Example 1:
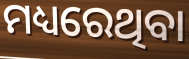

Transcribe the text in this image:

ମଧ୍ୟରେଥିବା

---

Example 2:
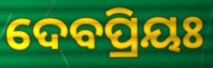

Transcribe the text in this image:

ଦେବପ୍ରିୟଃ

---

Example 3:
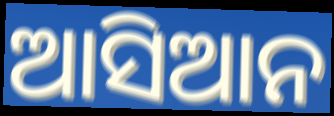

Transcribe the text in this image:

ଆସିଆନ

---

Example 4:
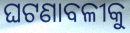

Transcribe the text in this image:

ଘଟଣାବଳୀକୁ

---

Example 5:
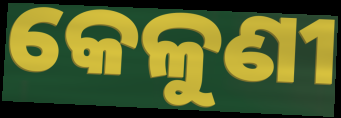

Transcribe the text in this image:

କେଳୁଣୀ